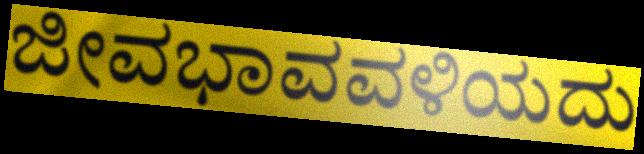
ಜೀವಭಾವವಳಿಯದು